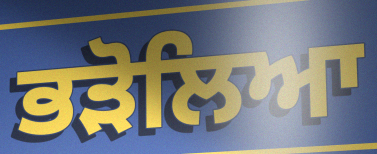
ਭੜੋਲਿਆ